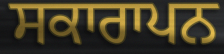
ਸਕਾਰਾਪਨ